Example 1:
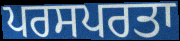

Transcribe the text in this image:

ਪਰਸਪਰਤਾ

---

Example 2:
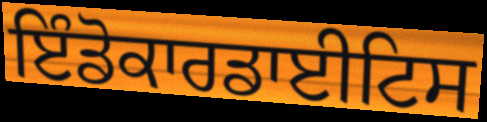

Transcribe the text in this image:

ਇੰਡੋਕਾਰਡਾਈਟਿਸ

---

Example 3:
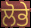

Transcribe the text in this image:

ਲੋਭੇ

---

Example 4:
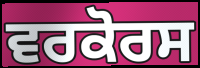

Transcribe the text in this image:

ਵਰਕੋਰਸ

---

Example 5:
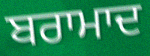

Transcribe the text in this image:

ਬਰਾਮਾਦ